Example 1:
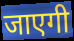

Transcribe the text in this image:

जाएगी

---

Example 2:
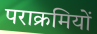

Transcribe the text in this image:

पराक्रमियों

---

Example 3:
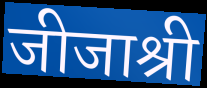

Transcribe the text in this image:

जीजाश्री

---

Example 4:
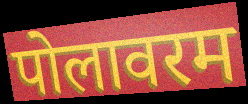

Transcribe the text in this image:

पोलावरम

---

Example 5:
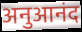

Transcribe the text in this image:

अनुआनंद